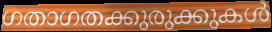
ഗതാഗതക്കുരുക്കുകൾ